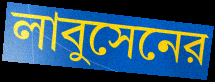
লাবুসেনের